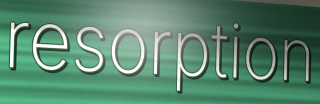
resorption